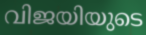
വിജയിയുടെ